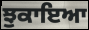
ਝੁਕਾਇਆ